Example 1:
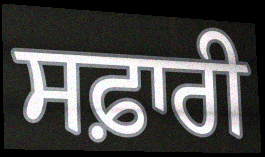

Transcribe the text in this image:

ਸਫ਼ਾਰੀ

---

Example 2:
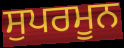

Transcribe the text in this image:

ਸੁਪਰਮੂਨ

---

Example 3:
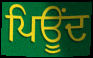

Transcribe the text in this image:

ਪਿਊਂਦ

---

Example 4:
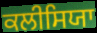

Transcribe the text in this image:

ਕਲੀਸਿਯਾ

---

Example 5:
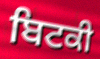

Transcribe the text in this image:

ਬਿਟਕੀ